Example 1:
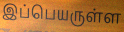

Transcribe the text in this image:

இப்பெயருள்ள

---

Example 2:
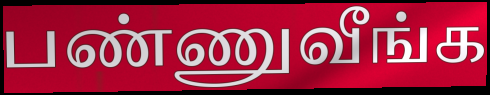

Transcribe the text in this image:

பண்ணுவீங்க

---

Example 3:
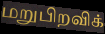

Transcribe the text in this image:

மறுபிறவிக்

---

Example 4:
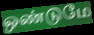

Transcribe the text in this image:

ஒண்டுமே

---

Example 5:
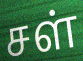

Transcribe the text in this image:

சள்